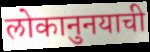
लोकानुनयाची